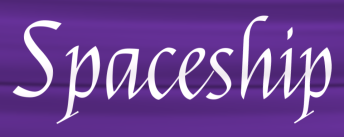
Spaceship